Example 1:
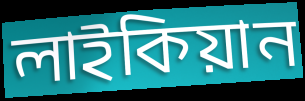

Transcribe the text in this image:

লাইকিয়ান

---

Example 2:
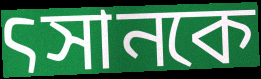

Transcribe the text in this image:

ৎসানকে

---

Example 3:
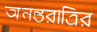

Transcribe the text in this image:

অনন্তরাত্রির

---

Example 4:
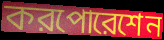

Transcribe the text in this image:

করপোরেশেন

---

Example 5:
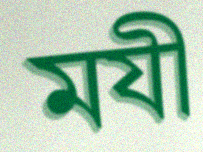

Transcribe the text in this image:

মযী